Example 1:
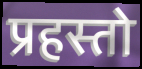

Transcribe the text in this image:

प्रहस्तो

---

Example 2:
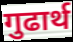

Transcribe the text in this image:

गुढार्थ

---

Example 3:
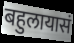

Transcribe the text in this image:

बहुलायासं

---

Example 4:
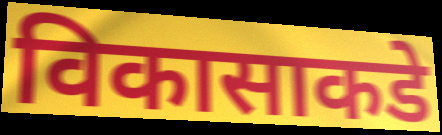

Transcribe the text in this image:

विकासाकडे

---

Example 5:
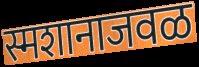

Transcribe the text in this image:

स्मशानाजवळ